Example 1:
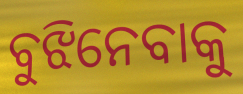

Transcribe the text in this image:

ବୁଝିନେବାକୁ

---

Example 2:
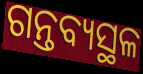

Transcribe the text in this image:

ଗନ୍ତବ୍ୟସ୍ଥଳ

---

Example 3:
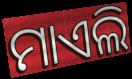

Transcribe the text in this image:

ମାଏଲି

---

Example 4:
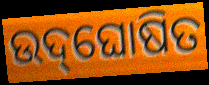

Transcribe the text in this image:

ଉଦ୍‌ଘୋଷିତ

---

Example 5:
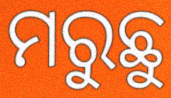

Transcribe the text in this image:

ମରୁଛୁ